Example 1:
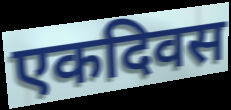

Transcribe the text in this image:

एकदिवस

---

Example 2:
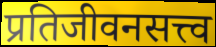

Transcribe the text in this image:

प्रतिजीवनसत्त्व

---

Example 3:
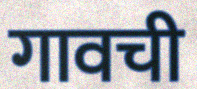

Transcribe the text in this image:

गावची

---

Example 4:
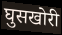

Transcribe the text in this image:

घुसखोरी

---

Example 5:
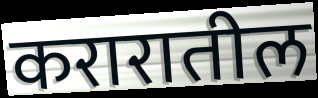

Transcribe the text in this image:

करारातील